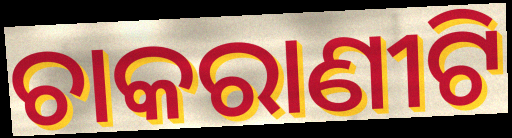
ଚାକରାଣୀଟି